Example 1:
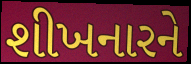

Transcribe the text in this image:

શીખનારને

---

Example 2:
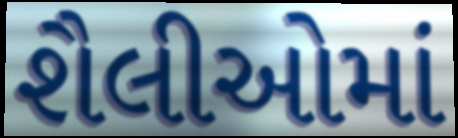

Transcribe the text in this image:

શૈલીઓમાં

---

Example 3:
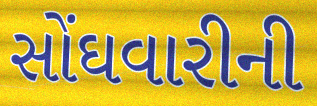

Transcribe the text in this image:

સોંઘવારીની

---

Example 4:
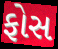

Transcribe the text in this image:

ફોસ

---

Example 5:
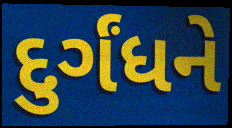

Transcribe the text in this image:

દુર્ગંધને